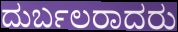
ದುರ್ಬಲರಾದರು